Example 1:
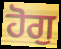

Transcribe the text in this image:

ਹੋਗੁ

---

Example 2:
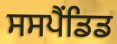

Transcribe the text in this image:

ਸਸਪੈਂਡਿਡ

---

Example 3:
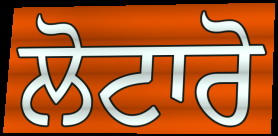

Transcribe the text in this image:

ਲੋਟਾਰੋ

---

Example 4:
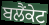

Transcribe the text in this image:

ਬਲੈਂਕੇਟ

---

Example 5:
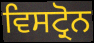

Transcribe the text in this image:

ਵਿਸਟ੍ਰੋਨ